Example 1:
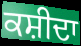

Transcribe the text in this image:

ਕਸ਼ੀਦਾ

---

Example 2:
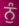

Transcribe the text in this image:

ਨੁੰ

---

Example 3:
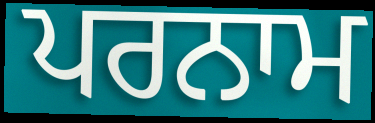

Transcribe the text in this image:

ਪਰਨਾਮ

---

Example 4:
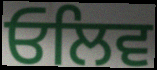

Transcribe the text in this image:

ਓਲਿਵ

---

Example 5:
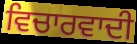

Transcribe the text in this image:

ਵਿਚਾਰਵਾਦੀ